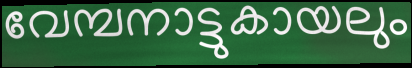
വേമ്പനാട്ടുകായലും